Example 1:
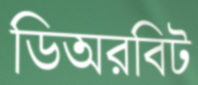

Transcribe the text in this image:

ডিঅরবিট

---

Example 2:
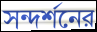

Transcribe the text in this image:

সন্দর্শনের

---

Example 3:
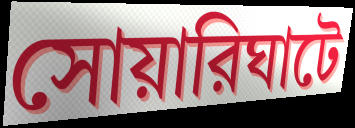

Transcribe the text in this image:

সোয়ারিঘাটে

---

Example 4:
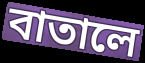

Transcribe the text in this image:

বাতালে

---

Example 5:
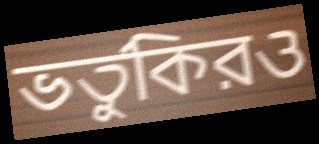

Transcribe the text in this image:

ভর্তুকিরও